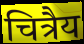
चित्रैय